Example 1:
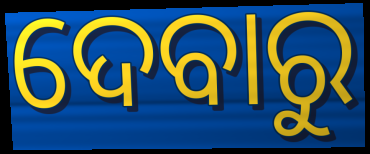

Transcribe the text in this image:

ଦେବାରୁ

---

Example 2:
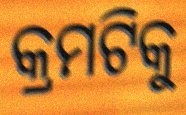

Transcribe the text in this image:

କ୍ରମଟିକୁ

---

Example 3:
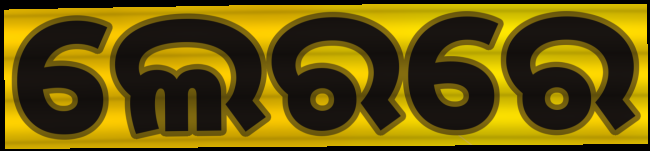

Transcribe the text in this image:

ଲେରରେ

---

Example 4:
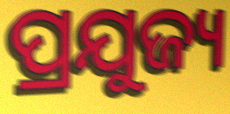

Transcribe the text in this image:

ପ୍ରଯୁଜ୍ୟ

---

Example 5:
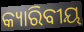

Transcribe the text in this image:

କ୍ୟାରିବୀୟ